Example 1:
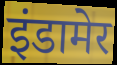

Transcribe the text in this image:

इंडामेर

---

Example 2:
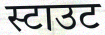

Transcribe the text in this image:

स्टाउट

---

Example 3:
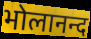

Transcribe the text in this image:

भोलानन्द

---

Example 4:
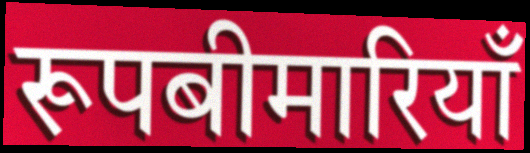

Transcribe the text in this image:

रूपबीमारियाँ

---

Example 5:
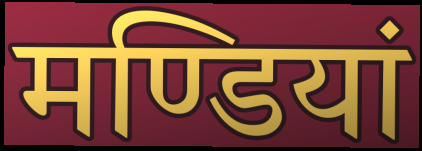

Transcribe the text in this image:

मण्डियां